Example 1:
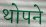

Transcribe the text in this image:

थोपने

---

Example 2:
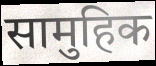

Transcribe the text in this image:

सामुहिक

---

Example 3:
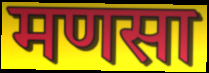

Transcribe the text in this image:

मणसा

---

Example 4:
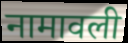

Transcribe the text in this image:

नामावली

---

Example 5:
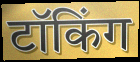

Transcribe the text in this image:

टॉकिंग